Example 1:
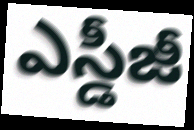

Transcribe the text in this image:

ఎస్డీజీ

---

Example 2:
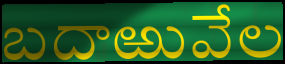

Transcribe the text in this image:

బదాఱువేల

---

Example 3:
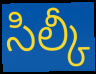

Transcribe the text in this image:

సిల్కీ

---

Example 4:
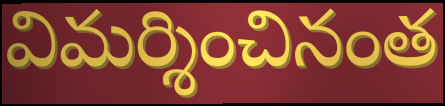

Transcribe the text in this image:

విమర్శించినంత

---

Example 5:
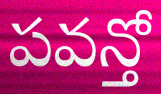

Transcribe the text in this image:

పవన్తో